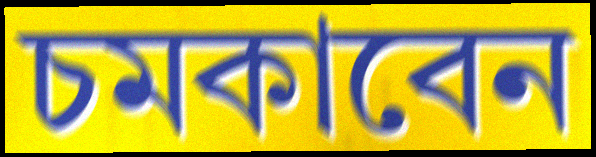
চমকাবেন